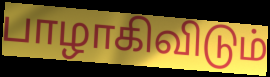
பாழாகிவிடும்